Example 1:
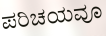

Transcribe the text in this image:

ಪರಿಚಯವೂ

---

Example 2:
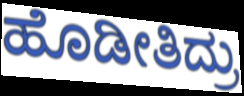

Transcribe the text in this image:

ಹೊಡೀತಿದ್ರು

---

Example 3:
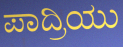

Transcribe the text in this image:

ಪಾದ್ರಿಯು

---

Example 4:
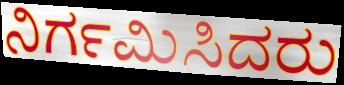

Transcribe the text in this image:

ನಿರ್ಗಮಿಸಿದರು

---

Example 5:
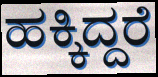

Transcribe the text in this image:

ಹಕ್ಕಿದ್ದರೆ